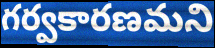
గర్వకారణమని